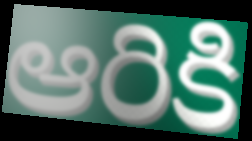
ఆరికి